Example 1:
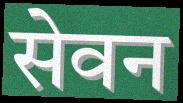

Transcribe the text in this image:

सेवन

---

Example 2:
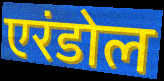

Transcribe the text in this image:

एरंडोल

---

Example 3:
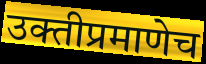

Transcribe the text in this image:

उक्तीप्रमाणेच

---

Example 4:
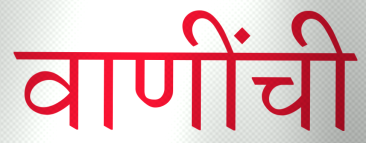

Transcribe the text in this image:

वाणींची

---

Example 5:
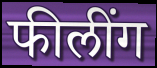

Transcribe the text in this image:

फीलींग